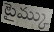
టైమ్కు